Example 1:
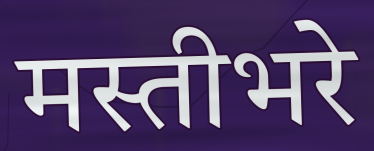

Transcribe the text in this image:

मस्तीभरे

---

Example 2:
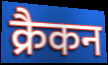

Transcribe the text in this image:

क्रैकन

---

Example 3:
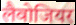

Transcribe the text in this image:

लैवोजियर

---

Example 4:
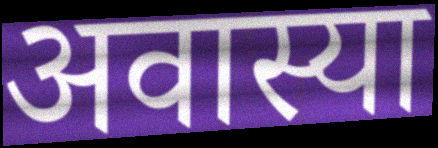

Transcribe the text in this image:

अवास्या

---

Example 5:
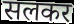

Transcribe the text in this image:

सलकर